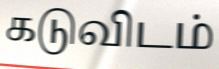
கடுவிடம்